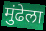
मुंढेला